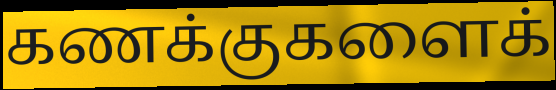
கணக்குகளைக்